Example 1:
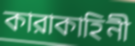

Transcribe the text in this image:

কারাকাহিনী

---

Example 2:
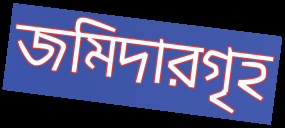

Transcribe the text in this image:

জমিদারগৃহ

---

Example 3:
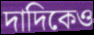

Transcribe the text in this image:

দাদিকেও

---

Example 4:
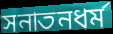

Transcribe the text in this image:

সনাতনধর্ম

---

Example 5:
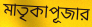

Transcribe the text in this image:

মাতৃকাপূজার